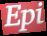
Epi